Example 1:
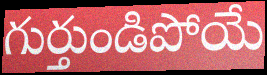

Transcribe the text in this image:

గుర్తుండిపోయే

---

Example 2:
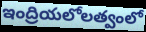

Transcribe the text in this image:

ఇంద్రియలోలత్వంలో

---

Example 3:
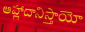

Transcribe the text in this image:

ఆహ్లాదానిస్తాయో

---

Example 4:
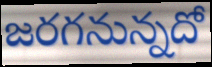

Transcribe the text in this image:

జరగనున్నదో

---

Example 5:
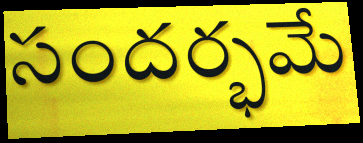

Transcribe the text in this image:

సందర్భమే